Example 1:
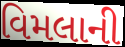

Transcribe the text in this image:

વિમલાની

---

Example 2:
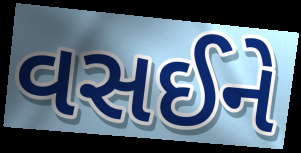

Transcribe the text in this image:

વસઈને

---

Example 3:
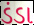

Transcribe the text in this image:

ડંડા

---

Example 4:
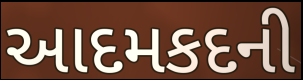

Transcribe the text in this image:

આદમકદની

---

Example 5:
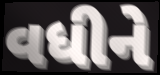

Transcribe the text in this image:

વધીને